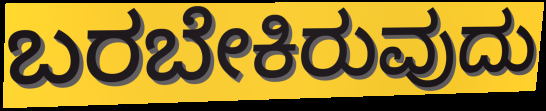
ಬರಬೇಕಿರುವುದು